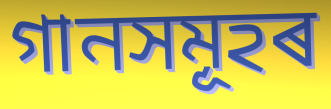
গানসমূহৰ